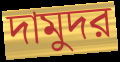
দামুদর